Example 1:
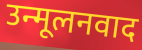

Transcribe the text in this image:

उन्मूलनवाद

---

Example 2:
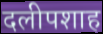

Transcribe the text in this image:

दलीपशाह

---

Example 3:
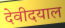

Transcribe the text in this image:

देवीदयाल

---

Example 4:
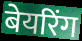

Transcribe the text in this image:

बेयरिंग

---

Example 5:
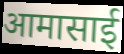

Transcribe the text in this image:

आमासाई